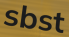
sbst